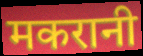
मकरानी